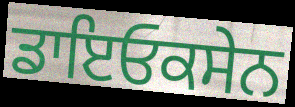
ਡਾਇਓਕਸੇਨ